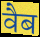
वैब